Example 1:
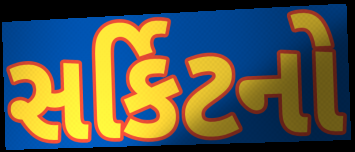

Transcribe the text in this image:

સર્કિટનો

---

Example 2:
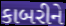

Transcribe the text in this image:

કાબરીને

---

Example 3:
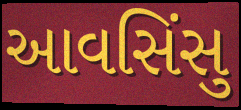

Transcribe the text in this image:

આવસિંસુ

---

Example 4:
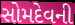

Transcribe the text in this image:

સોમદેવની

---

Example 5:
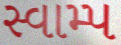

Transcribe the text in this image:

સ્વામ્પ